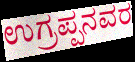
ಉಗ್ರಪ್ಪನವರ